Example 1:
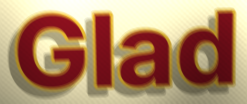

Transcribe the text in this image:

Glad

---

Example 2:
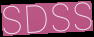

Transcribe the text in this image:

SDSS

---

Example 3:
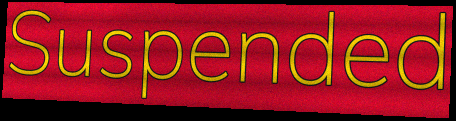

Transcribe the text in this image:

Suspended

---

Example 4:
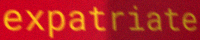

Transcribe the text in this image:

expatriate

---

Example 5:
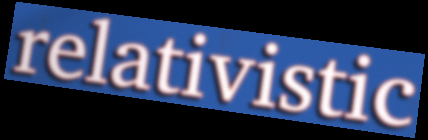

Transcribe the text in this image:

relativistic